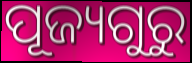
ପୂଜ୍ୟଗୁରୁ